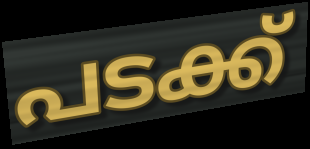
പടക്ക്